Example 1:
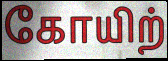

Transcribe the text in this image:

கோயிற்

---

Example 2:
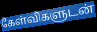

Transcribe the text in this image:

கேள்விகளுடன்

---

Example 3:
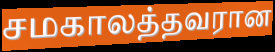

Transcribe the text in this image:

சமகாலத்தவரான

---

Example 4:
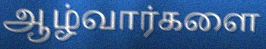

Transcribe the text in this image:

ஆழ்வார்களை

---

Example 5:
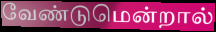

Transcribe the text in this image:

வேண்டுமென்றால்